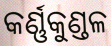
କର୍ଣ୍ଣକୁଣ୍ଡଳ